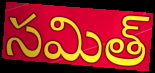
సమిత్